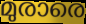
മുരാരെ